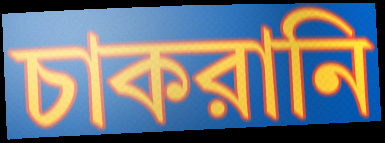
চাকরানি